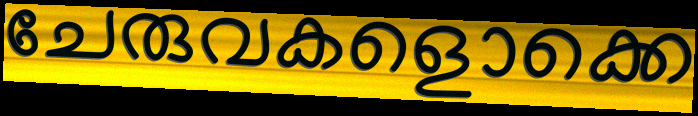
ചേരുവകളൊക്കെ